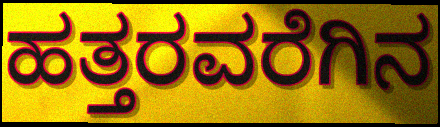
ಹತ್ತರವರೆಗಿನ